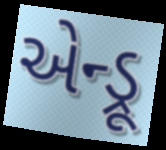
એન્ડ્રૂ